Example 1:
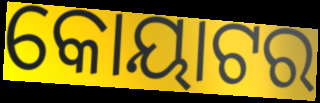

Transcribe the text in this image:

କୋୟାଟର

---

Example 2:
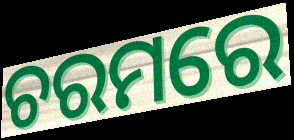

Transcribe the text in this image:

ଚରମରେ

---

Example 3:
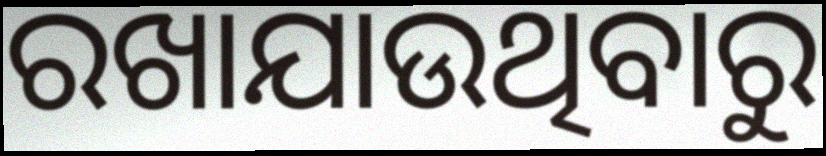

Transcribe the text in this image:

ରଖାଯାଉଥିବାରୁ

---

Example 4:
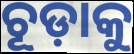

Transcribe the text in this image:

ଚୂଡ଼ାକୁ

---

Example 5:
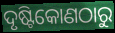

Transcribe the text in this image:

ଦୃଷ୍ଟିକୋଣଠାରୁ